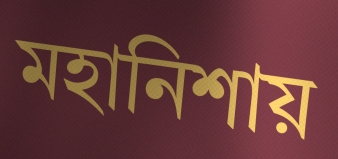
মহানিশায়